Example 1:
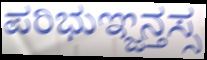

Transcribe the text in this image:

ಪರಿಭುಞ್ಜನ್ತಸ್ಸ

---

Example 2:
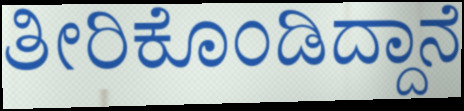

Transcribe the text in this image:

ತೀರಿಕೊಂಡಿದ್ದಾನೆ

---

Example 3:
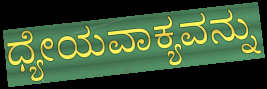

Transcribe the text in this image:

ಧ್ಯೇಯವಾಕ್ಯವನ್ನು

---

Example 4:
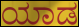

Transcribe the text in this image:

ಯಾಡ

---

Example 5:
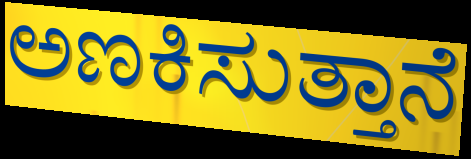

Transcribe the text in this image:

ಅಣಕಿಸುತ್ತಾನೆ